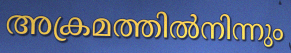
അക്രമത്തിൽനിന്നും